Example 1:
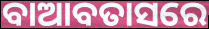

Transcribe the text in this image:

ବାଆବତାସରେ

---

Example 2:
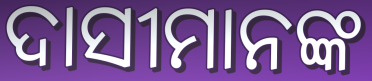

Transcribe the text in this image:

ଦାସୀମାନଙ୍କ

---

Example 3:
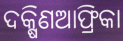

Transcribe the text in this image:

ଦକ୍ଷିଣଆଫ୍ରିକା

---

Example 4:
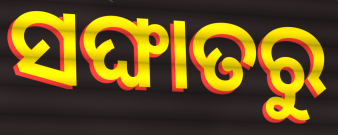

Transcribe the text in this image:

ସଙ୍ଘାତରୁ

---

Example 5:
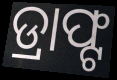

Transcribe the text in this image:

ଡ୍ରାଫ୍ଟ